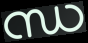
ന്ധ